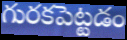
గురకపెట్టడం